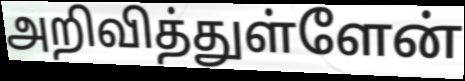
அறிவித்துள்ளேன்